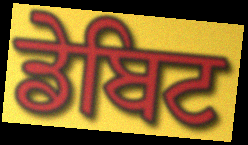
ਡੇਬਿਟ